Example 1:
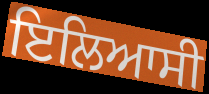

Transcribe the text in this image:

ਇਲਿਆਸੀ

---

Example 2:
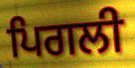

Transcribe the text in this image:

ਪਿਗਲੀ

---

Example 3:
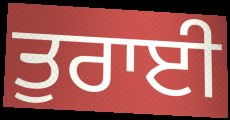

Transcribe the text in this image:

ਤੁਰਾਈ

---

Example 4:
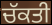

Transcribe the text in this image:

ਚੱਕਤੀ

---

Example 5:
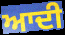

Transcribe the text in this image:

ਆਦੀ